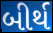
બીર્થ